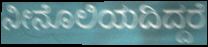
ನೀನೊಲಿಯದಿದ್ದರೆ